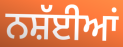
ਨਸ਼ੱਈਆਂ